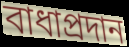
বাধাপ্রদান